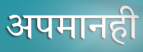
अपमानही